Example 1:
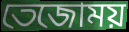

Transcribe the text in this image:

তেজোময়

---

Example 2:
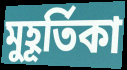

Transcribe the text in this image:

মুহূর্তিকা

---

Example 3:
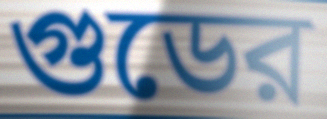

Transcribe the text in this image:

গুডের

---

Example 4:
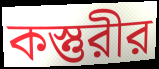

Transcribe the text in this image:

কস্তুরীর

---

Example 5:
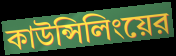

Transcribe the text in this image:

কাউন্সিলিংয়ের